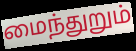
மைந்துறும்